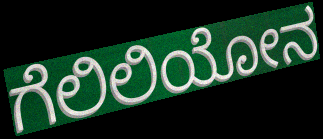
ಗೆಲಿಲಿಯೋನ